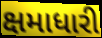
ક્ષમાધારી